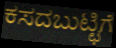
ಕಸದಬುಟ್ಟಿಗೆ